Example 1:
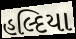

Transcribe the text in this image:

હલ્દિયા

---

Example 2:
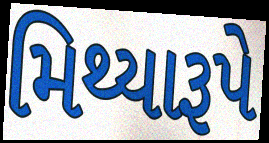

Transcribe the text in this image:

મિથ્યારૂપે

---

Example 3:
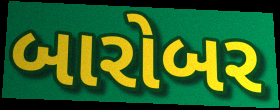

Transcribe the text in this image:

બારોબર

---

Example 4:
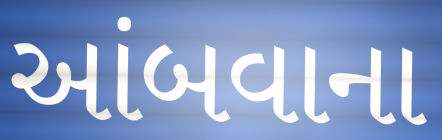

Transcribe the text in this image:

આંબવાના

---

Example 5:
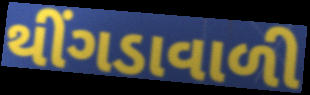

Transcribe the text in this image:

થીંગડાવાળી